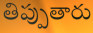
తిప్పుతారు